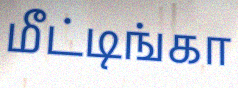
மீட்டிங்கா